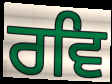
ਰਵਿ